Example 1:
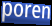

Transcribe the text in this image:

poren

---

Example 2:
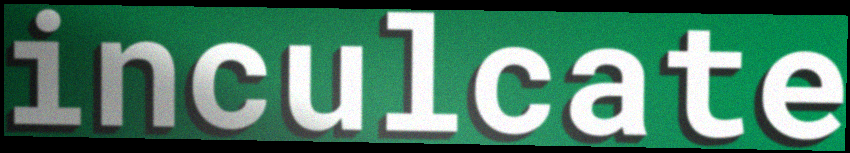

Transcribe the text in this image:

inculcate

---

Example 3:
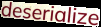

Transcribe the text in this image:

deserialize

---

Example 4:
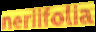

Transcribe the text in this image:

neriifolia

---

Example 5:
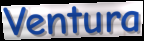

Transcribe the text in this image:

Ventura